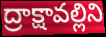
ద్రాక్షావల్లిని